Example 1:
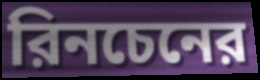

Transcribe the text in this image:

রিনচেনের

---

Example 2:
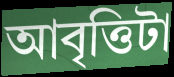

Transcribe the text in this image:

আবৃত্তিটা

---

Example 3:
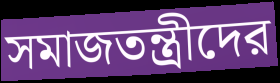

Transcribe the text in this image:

সমাজতন্ত্রীদের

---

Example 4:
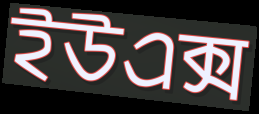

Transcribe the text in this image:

ইউএক্স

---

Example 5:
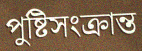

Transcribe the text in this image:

পুষ্টিসংক্রান্ত